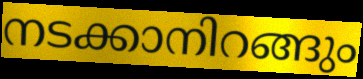
നടക്കാനിറങ്ങും